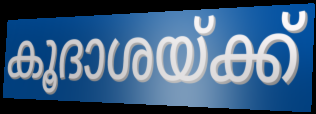
കൂദാശയ്ക്ക്